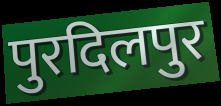
पुरदिलपुर